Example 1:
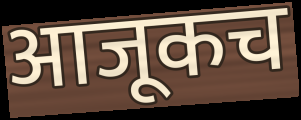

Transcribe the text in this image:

आजूकच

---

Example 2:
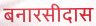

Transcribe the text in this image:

बनारसीदास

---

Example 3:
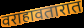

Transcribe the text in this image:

वराहावतारात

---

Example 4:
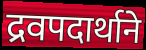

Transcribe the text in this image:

द्रवपदार्थाने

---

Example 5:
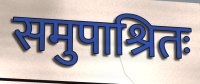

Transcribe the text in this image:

समुपाश्रितः